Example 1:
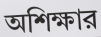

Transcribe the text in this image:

অশিক্ষার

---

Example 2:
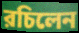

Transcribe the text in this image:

রচিলেন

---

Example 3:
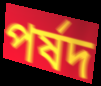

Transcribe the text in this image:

পর্ষদ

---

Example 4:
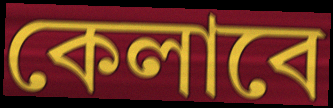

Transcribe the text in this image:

কেলাবে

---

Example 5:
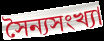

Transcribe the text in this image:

সৈন্যসংখ্যা